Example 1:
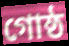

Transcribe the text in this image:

গোষ্ঠ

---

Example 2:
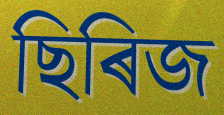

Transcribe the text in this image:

ছিৰিজ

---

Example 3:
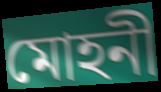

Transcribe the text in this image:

মোহনী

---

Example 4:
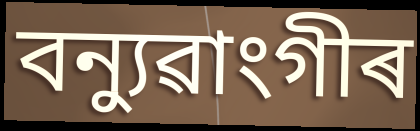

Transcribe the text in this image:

বন্যুৱাংগীৰ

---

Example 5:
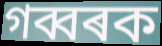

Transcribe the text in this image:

গব্বৰক